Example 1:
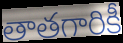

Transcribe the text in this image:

తాతగారికీ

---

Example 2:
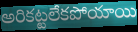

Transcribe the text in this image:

అరికట్టలేకపోయాయి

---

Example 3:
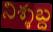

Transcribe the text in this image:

నిశ్శబ్ద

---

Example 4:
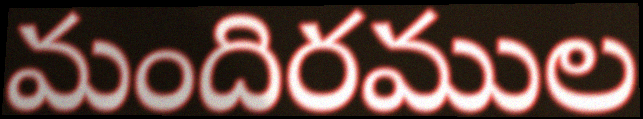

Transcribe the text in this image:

మందిరముల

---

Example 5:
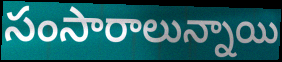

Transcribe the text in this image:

సంసారాలున్నాయి